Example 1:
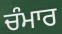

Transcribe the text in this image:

ਚੰਮਾਰ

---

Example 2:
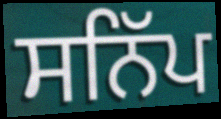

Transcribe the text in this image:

ਸਨਿੱਪ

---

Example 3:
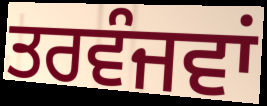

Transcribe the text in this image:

ਤਰਵੰਜਵਾਂ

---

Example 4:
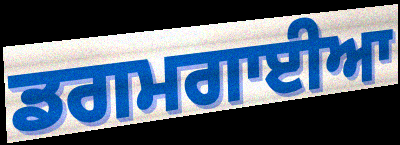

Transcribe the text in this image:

ਡਗਮਗਾਈਆ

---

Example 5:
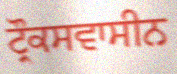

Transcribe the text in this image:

ਟ੍ਰੌਕਸਵਾਸੀਨ